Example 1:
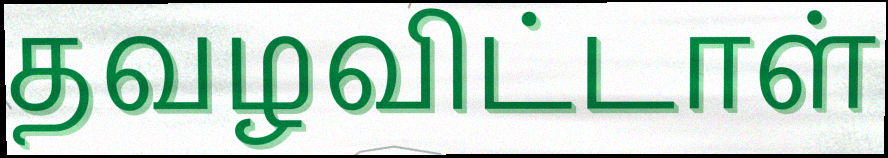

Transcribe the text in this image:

தவழவிட்டாள்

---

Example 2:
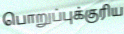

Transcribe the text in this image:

பொறுப்புக்குரிய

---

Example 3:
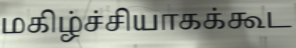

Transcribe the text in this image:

மகிழ்ச்சியாகக்கூட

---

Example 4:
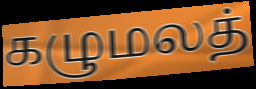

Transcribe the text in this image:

கழுமலத்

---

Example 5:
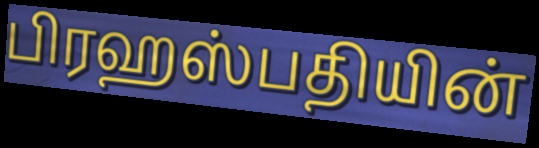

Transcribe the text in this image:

பிரஹஸ்பதியின்